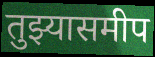
तुझ्यासमीप